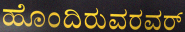
ಹೊಂದಿರುವರವರ್